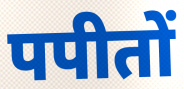
पपीतों